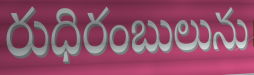
రుధిరంబులును